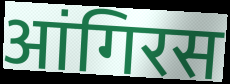
आंगिरस